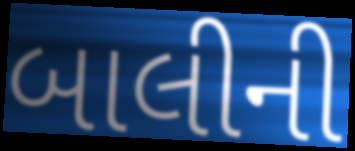
બાલીની